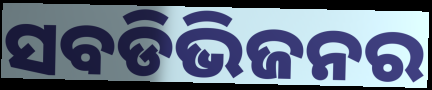
ସବଡିଭିଜନର